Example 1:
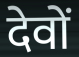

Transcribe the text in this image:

देवों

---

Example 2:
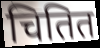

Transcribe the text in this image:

चितित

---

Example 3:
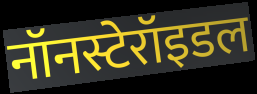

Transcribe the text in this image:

नॉनस्टेरॉइडल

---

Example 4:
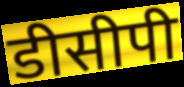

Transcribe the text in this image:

डीसीपी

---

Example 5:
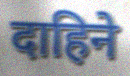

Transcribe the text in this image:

दाहिने